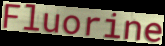
Fluorine